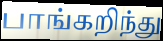
பாங்கறிந்து